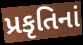
પ્રકૃતિનાં